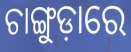
ଚାଙ୍ଗୁଡ଼ାରେ